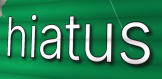
hiatus